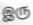
இரு